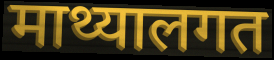
माथ्यालगत